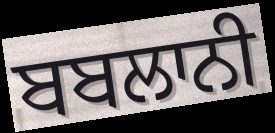
ਬਬਲਾਨੀ